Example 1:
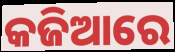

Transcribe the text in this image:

କଜିଆରେ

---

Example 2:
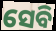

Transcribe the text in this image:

ସେବି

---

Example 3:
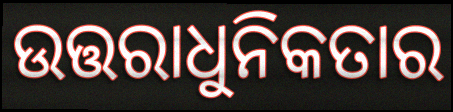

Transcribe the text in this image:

ଉତ୍ତରାଧୁନିକତାର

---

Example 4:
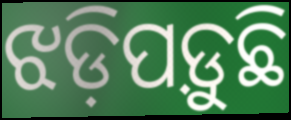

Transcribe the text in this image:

ଝଡ଼ିପଡ଼ୁଛି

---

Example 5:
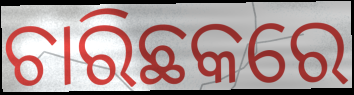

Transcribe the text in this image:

ଚାରିଛକରେ